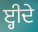
ੲ੍ਹੀਦੇ